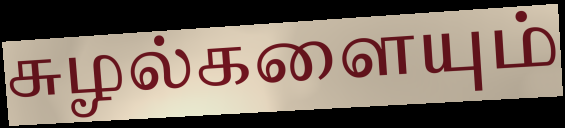
சுழல்களையும்